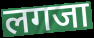
लगजा